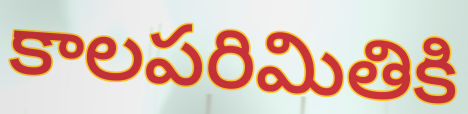
కాలపరిమితికి